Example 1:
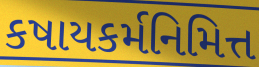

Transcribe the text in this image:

કષાયકર્મનિમિત્ત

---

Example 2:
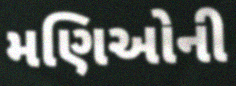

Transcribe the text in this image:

મણિઓની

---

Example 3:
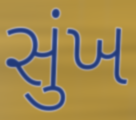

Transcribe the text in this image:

સુંખ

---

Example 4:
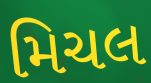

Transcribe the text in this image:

મિચલ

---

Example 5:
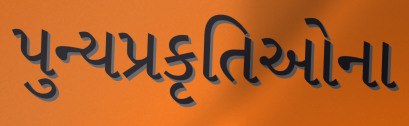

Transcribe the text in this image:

પુન્યપ્રકૃતિઓના